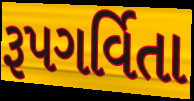
રૂપગર્વિતા